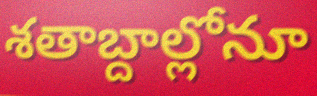
శతాబ్దాల్లోనూ